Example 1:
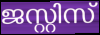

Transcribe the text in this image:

ജസ്റ്റിസ്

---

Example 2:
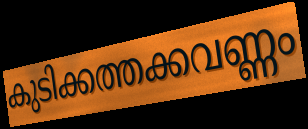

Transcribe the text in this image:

കുടിക്കത്തക്കവണ്ണം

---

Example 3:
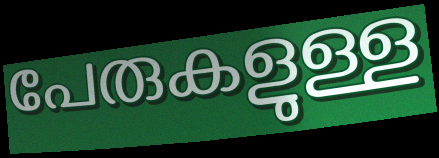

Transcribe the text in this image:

പേരുകളുള്ള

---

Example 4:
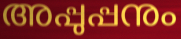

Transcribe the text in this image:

അപ്പുപ്പനും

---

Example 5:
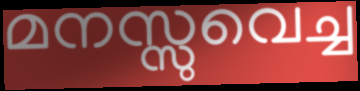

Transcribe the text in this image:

മനസ്സുവെച്ച